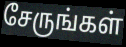
சேருங்கள்